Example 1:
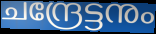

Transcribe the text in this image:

ചന്ദ്രേട്ടനും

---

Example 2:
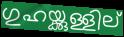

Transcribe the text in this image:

ഗുഹയ്ക്കുള്ളില്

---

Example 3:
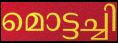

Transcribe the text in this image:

മൊട്ടച്ചി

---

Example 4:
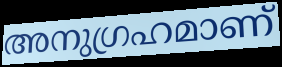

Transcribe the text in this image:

അനുഗ്രഹമാണ്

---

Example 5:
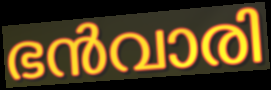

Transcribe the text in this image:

ഭൻവാരി